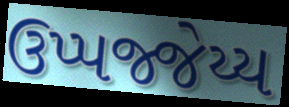
ઉપ્પજ્જેય્ય